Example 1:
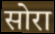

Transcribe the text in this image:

सोरा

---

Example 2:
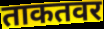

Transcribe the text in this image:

ताकतवर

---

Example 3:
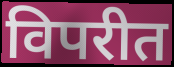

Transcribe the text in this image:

विपरीत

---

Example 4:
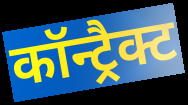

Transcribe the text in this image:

कॉन्ट्रैक्ट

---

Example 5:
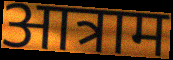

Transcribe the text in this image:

आत्राम